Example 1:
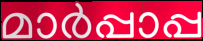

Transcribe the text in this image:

മാർപ്പാപ്പ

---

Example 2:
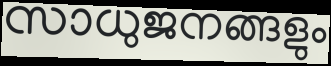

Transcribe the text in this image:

സാധുജനങ്ങളും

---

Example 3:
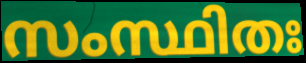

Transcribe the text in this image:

സംസ്ഥിതഃ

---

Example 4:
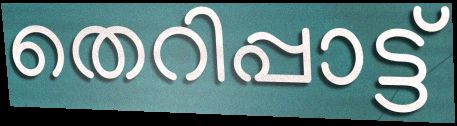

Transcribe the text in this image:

തെറിപ്പാട്ട്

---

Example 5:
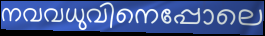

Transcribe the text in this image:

നവവധുവിനെപ്പോലെ